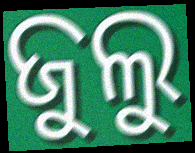
ଜୁଲୁ